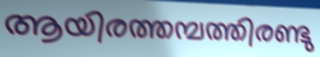
ആയിരത്തമ്പത്തിരണ്ടു